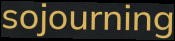
sojourning